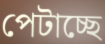
পেটাচ্ছে